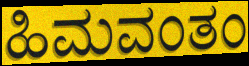
ಹಿಮವಂತಂ